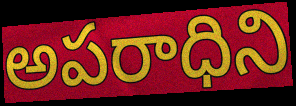
అపరాధిని